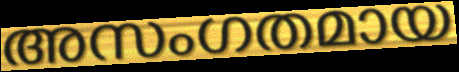
അസംഗതമായ